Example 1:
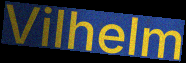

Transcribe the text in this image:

Vilhelm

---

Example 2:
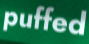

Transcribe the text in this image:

puffed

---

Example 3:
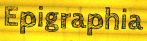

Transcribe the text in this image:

Epigraphia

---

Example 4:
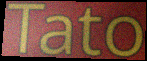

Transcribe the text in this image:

Tato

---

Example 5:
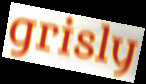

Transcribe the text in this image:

grisly